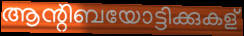
ആന്റിബയോട്ടിക്കുകള്